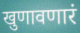
खुणावणारं